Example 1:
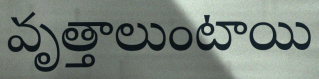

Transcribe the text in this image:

వృత్తాలుంటాయి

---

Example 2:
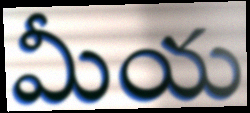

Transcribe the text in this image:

మీయ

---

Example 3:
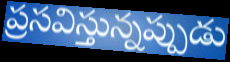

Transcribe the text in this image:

ప్రసవిస్తున్నప్పుడు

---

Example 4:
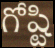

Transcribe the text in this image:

గోష్టి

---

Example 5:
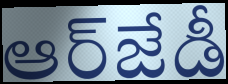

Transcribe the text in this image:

ఆర్‌జేడీ